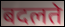
बदलते